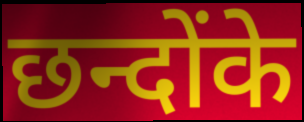
छन्दोंके